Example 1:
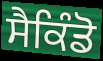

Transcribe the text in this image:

ਸੈਕਿੰਡੋ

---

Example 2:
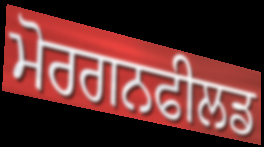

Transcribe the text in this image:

ਮੋਰਗਨਫੀਲਡ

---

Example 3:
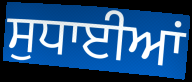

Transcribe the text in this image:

ਸੁਧਾਈਆਂ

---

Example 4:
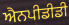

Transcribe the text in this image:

ਐਨਪੀਡੀਡੀ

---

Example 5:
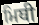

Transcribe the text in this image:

ਮਿਥੀ